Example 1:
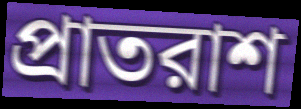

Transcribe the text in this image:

প্রাতরাশ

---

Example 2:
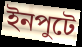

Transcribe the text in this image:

ইনপুটে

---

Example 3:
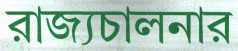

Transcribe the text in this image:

রাজ্যচালনার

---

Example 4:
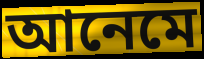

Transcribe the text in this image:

আনেমে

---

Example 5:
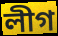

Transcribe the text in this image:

লীগ